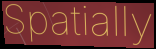
Spatially